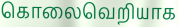
கொலைவெறியாக